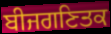
ਬੀਜਗਣਿਤਕ